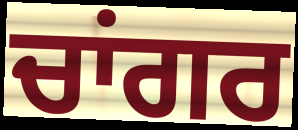
ਚਾਂਗਰ